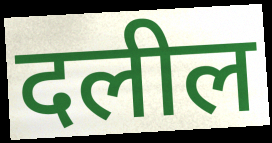
दलील